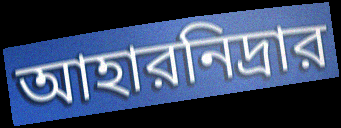
আহারনিদ্রার